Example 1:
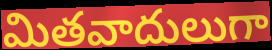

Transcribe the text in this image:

మితవాదులుగా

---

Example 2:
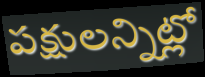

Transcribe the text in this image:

పక్షులన్నిట్లో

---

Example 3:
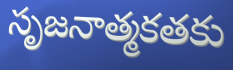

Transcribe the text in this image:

సృజనాత్మకతకు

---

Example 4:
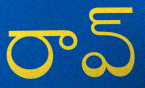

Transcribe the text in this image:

రావ్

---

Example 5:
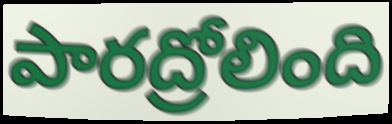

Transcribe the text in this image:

పారద్రోలింది